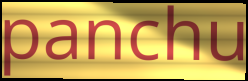
panchu